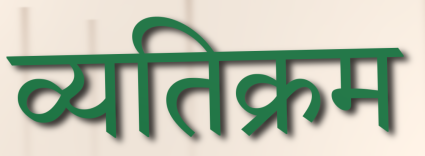
व्यतिक्रम